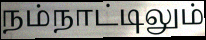
நம்நாட்டிலும்